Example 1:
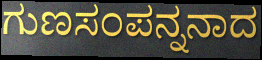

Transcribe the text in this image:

ಗುಣಸಂಪನ್ನನಾದ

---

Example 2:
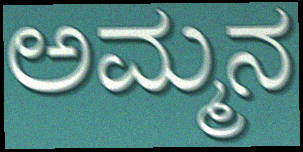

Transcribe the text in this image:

ಅಮ್ಮನ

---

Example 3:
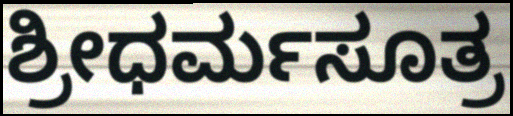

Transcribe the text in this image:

ಶ್ರೀಧರ್ಮಸೂತ್ರ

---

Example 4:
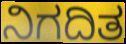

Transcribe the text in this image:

ನಿಗದಿತ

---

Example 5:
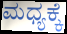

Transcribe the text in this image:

ಮಧ್ಯಕ್ಕೆ